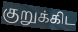
குறுக்கிட